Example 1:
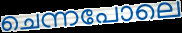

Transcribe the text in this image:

ചെന്നപോലെ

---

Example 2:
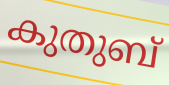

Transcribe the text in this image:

കുതുബ്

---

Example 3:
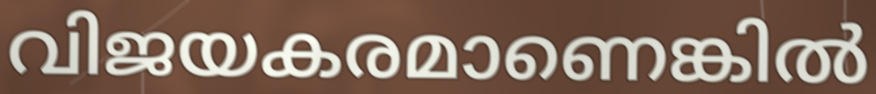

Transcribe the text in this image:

വിജയകരമാണെങ്കിൽ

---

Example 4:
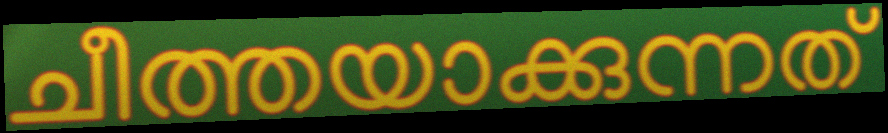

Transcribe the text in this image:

ചീത്തയാക്കുന്നത്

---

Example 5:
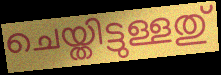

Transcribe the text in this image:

ചെയ്തിട്ടുള്ളതു്